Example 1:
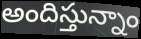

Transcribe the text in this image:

అందిస్తున్నాం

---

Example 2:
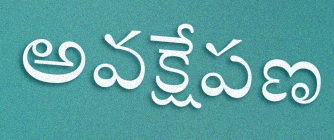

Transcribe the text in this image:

అవక్షేపణ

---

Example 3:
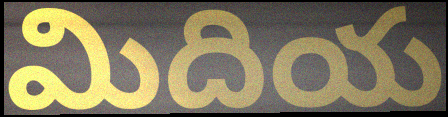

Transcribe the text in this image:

మిదియ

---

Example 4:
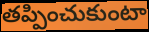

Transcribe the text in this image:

తప్పించుకుంటా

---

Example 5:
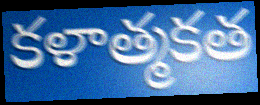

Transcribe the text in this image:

కళాత్మకత